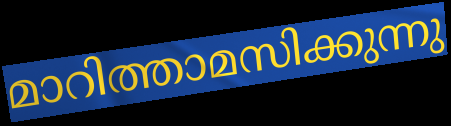
മാറിത്താമസിക്കുന്നു